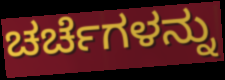
ಚರ್ಚೆಗಳನ್ನು